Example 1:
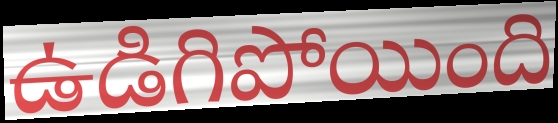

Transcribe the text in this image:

ఉడిగిపోయింది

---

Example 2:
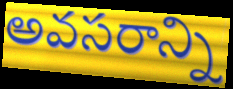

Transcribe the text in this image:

అవసరాన్ని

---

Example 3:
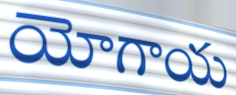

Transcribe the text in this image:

యోగాయ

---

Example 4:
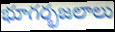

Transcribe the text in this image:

భూగర్భజలాలు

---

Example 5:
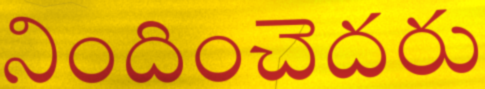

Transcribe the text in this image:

నిందించెదరు